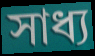
সাধ্য